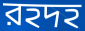
রহদহ